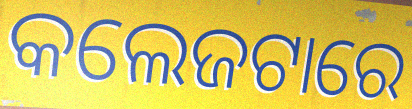
କଲେଜଟାରେ